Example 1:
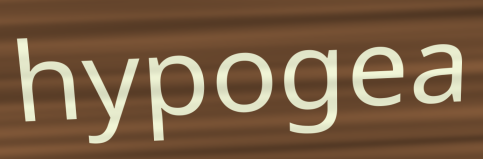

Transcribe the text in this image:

hypogea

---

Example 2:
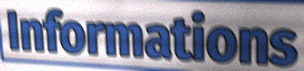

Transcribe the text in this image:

Informations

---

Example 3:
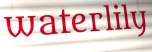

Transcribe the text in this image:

waterlily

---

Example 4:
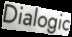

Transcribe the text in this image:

Dialogic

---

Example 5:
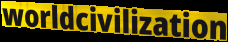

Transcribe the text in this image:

worldcivilization